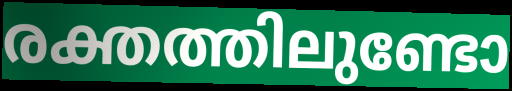
രക്തത്തിലുണ്ടോ